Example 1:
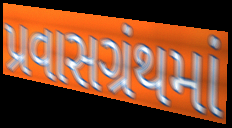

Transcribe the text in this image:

પ્રવાસગ્રંથમાં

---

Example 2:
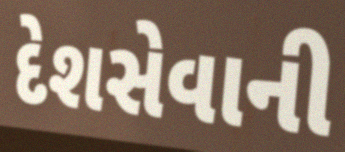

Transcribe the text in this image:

દેશસેવાની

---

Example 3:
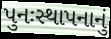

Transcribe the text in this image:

પુનઃસ્થાપનાનું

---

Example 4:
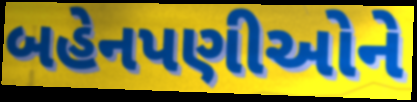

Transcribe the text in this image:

બહેનપણીઓને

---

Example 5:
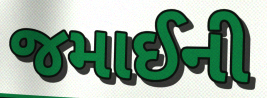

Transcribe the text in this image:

જમાઈની